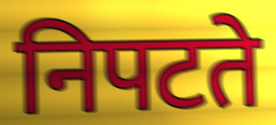
निपटते